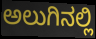
ಅಲುಗಿನಲ್ಲಿ